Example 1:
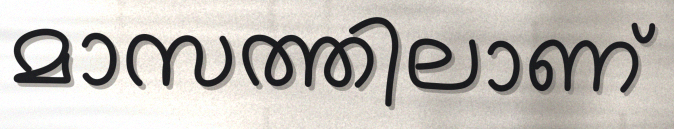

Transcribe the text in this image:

മാസത്തിലാണ്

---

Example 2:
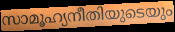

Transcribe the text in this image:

സാമൂഹ്യനീതിയുടെയും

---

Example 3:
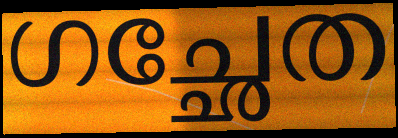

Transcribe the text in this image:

ഗച്ഛേത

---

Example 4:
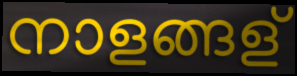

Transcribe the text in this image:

നാളങ്ങള്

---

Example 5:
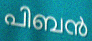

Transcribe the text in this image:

പിബൻ